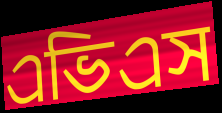
এভিএস